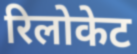
रिलोकेट